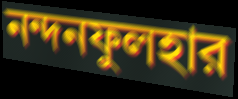
নন্দনফুলহার